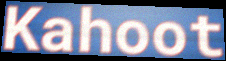
Kahoot